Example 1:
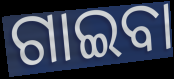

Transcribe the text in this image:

ଗାଇବା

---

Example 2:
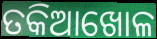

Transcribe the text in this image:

ତକିଆଖୋଳ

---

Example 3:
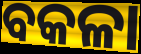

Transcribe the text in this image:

ବକଳା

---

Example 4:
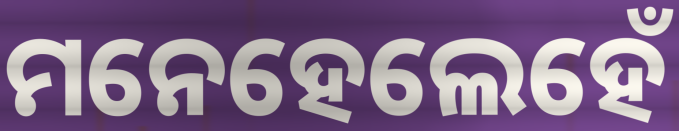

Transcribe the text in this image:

ମନେହେଲେହେଁ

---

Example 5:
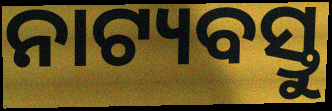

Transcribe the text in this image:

ନାଟ୍ୟବସ୍ତୁ